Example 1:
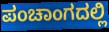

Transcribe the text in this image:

ಪಂಚಾಂಗದಲ್ಲಿ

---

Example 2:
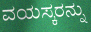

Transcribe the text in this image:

ವಯಸ್ಕರನ್ನು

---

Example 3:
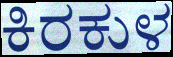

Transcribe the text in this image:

ಕಿರಕುಳ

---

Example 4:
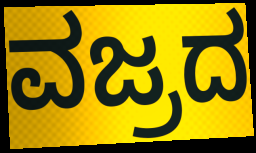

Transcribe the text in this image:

ವಜ್ರದ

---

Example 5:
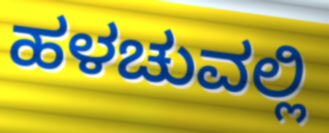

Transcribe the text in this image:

ಹಳಚುವಲ್ಲಿ